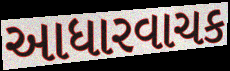
આધારવાચક